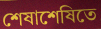
শেষাশেষিতে